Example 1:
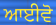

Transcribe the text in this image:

ਆਈਵੋ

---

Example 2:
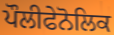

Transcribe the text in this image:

ਪੌਲੀਫੇਨੋਲਿਕ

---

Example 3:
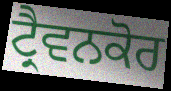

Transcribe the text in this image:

ਟ੍ਰੈਵਨਕੋਰ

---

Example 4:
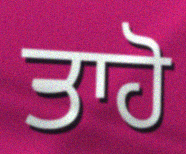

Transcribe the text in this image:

ਤਾਹੋ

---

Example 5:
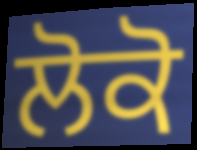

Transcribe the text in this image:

ਲੋਕੋ